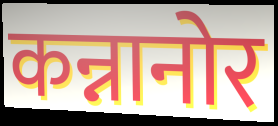
कन्नानोर